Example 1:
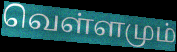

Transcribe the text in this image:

வெள்ளமும்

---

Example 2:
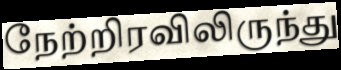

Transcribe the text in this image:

நேற்றிரவிலிருந்து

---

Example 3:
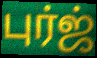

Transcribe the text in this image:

புர்ஜ்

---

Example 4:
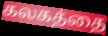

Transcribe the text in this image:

கலகத்தை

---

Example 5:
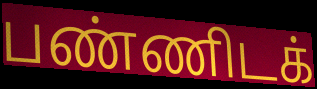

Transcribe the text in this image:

பண்ணிடக்